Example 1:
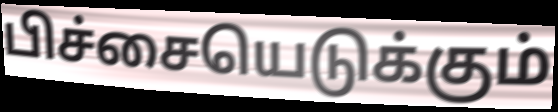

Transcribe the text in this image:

பிச்சையெடுக்கும்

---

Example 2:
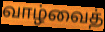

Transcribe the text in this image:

வாழ்வைத்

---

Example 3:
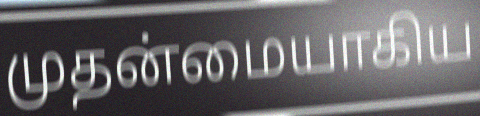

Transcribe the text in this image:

முதன்மையாகிய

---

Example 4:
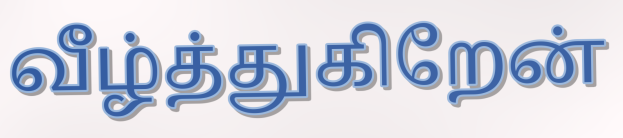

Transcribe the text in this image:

வீழ்த்துகிறேன்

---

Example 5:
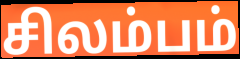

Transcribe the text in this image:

சிலம்பம்